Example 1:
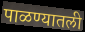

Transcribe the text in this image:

पाळण्यातली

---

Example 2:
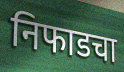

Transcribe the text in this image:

निफाडचा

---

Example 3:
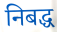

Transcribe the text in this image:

निबद्ध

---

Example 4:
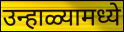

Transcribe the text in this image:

उन्हाळ्यामध्ये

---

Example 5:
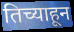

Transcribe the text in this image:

तिच्याहून